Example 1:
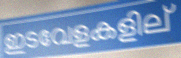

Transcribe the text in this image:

ഇടവേളകളില്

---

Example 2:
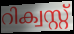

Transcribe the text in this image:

റിക്വസ്റ്റ്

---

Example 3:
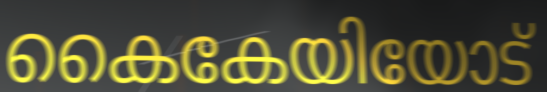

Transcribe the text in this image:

കൈകേയിയോട്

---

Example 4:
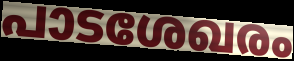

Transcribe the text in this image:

പാടശേഖരം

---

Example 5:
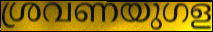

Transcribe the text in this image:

ശ്രവണയുഗള